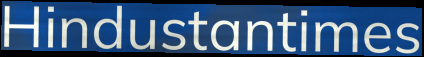
Hindustantimes